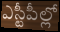
ఎస్టీపీల్లో